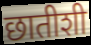
छातीशी